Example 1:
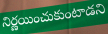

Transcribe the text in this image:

నిర్ణయించుకుంటాడని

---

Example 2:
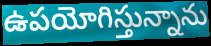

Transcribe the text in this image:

ఉపయోగిస్తున్నాను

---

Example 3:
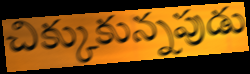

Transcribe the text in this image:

చిక్కుకున్నపుడు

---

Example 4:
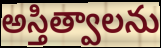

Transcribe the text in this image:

అస్తిత్వాలను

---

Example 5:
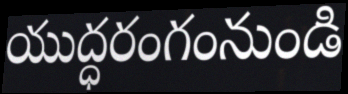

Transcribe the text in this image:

యుద్ధరంగంనుండి